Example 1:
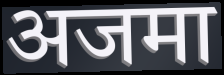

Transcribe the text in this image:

अजमा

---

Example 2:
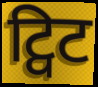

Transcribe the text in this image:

ट्विट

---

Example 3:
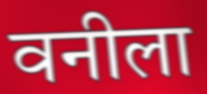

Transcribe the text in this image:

वनीला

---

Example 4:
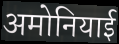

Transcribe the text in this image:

अमोनियाई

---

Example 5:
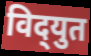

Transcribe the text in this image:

विद्‌युत